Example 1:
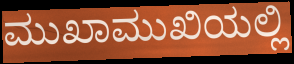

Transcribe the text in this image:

ಮುಖಾಮುಖಿಯಲ್ಲಿ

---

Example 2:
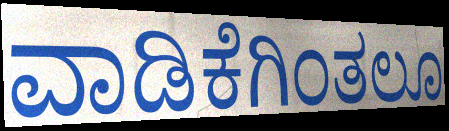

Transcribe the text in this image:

ವಾಡಿಕೆಗಿಂತಲೂ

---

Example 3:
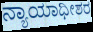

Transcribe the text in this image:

ನ್ಯಾಯಾಧೀಶರ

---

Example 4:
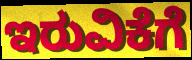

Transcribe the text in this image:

ಇರುವಿಕೆಗೆ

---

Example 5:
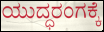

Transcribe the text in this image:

ಯುದ್ಧರಂಗಕ್ಕೆ